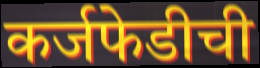
कर्जफेडीची